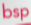
bsp